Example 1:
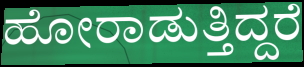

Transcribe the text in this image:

ಹೋರಾಡುತ್ತಿದ್ದರೆ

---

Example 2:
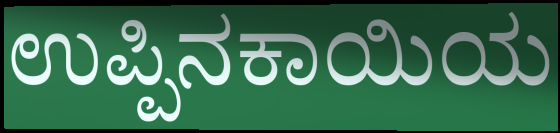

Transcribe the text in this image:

ಉಪ್ಪಿನಕಾಯಿಯ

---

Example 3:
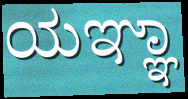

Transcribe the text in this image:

ಯಞ್ಞಾ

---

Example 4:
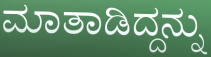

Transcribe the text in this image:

ಮಾತಾಡಿದ್ದನ್ನು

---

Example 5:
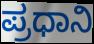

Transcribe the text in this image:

ಪ್ರಧಾನಿ